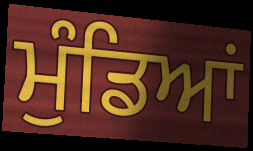
ਮੁੰਡਿਆਂ